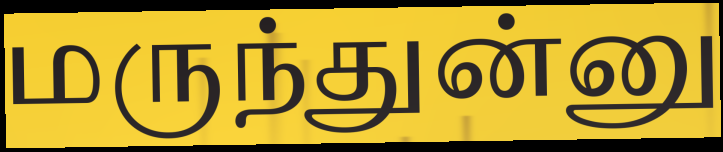
மருந்துன்னு